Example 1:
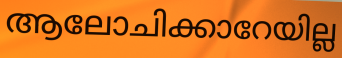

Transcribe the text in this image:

ആലോചിക്കാറേയില്ല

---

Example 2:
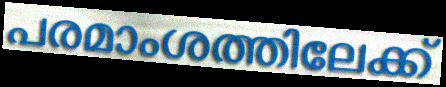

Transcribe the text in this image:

പരമാംശത്തിലേക്ക്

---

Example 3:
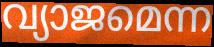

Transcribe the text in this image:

വ്യാജമെന്ന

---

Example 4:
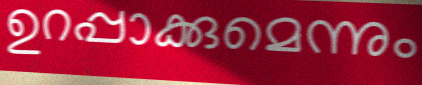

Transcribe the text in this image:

ഉറപ്പാക്കുമെന്നും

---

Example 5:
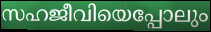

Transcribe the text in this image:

സഹജീവിയെപ്പോലും